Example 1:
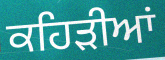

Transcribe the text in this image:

ਕਹਿੜੀਆਂ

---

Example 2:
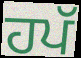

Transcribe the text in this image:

ਹਪੱ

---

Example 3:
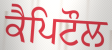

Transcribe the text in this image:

ਕੈਪਿਟੌਲ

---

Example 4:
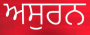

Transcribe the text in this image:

ਅਸੁਰਨ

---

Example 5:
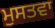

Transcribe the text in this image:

ਮੁਸਤਵਾ